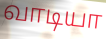
வாடியா